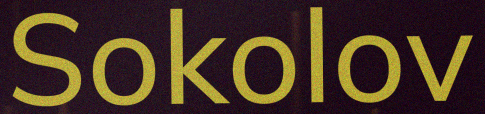
Sokolov